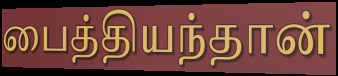
பைத்தியந்தான்